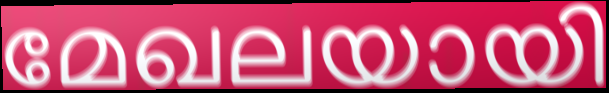
മേഖലയായി